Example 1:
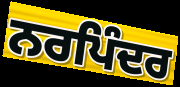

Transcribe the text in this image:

ਨਰਪਿੰਦਰ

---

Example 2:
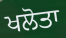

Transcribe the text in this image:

ਖਲੋਤਾ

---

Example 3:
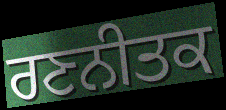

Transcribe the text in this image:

ਰਣਨੀਤਕ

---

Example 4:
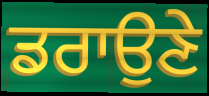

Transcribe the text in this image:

ਡਰਾਉਣੇ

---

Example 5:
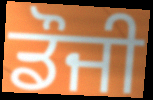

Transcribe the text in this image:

ਡੌਜੀ